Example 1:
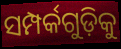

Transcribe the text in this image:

ସମ୍ପର୍କଗୁଡ଼ିକୁ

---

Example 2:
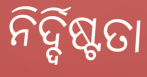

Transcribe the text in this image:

ନିର୍ଦ୍ଦିଷ୍ଟତା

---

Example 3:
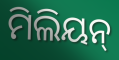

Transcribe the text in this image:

ମିଲିୟନ୍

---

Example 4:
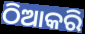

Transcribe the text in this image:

ଠିଆକରି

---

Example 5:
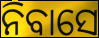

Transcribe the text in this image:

ନିବାସେ